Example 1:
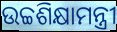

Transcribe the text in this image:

ଉଚ୍ଚଶିକ୍ଷାମନ୍ତ୍ରୀ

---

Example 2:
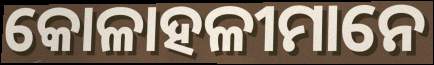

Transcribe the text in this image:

କୋଳାହଳୀମାନେ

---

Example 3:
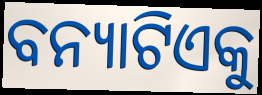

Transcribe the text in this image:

ବନ୍ୟାଟିଏକୁ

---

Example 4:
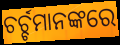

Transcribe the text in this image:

ଚର୍ଚ୍ଚମାନଙ୍କରେ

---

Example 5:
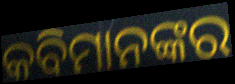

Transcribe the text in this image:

କବିମାନଙ୍କର